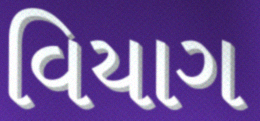
વિયાગ